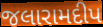
જલારામદીપ